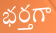
భర్తగా